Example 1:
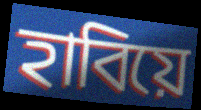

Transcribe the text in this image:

হাবিয়ে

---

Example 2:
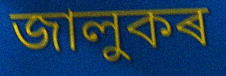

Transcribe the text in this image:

জালুকৰ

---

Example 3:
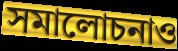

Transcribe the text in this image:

সমালোচনাও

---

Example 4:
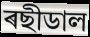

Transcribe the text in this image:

ৰছীডাল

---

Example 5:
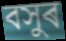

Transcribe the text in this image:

বসুৰ